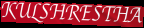
KULSHRESTHA